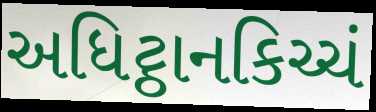
અધિટ્ઠાનકિચ્ચં